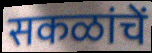
सकळांचें